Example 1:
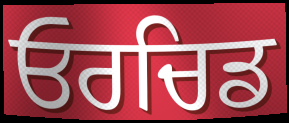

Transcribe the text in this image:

ਓਰਚਿਡ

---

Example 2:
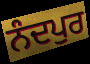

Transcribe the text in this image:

ਨੰਦਪੁਰ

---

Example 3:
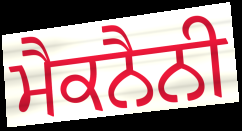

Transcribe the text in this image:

ਮੈਕਨੈਨੀ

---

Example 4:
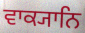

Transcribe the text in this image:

ਵਾਕ੍ਯਾਨਿ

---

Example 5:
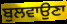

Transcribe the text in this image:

ਬੁਲਵਾਉਣਾ